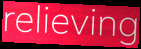
relieving